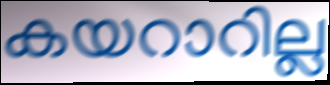
കയറാറില്ല